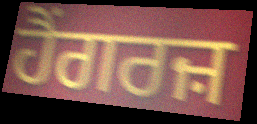
ਹੈਂਗਰਜ਼